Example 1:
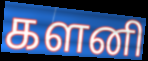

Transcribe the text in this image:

களனி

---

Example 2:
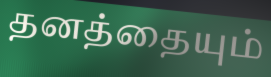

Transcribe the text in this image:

தனத்தையும்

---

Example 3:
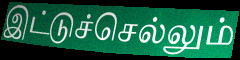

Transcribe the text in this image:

இட்டுச்செல்லும்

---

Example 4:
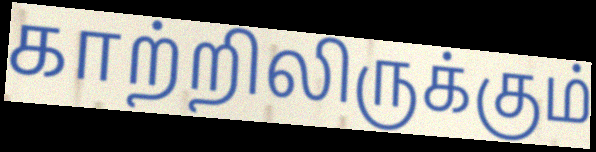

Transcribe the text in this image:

காற்றிலிருக்கும்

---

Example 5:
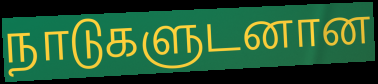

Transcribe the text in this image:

நாடுகளுடனான